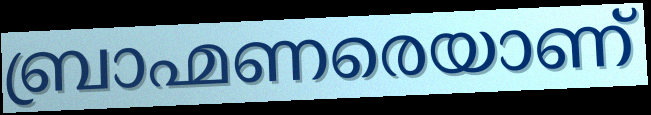
ബ്രാഹ്മണരെയാണ്